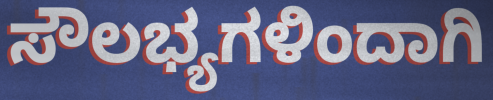
ಸೌಲಭ್ಯಗಳಿಂದಾಗಿ